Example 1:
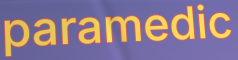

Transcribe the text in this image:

paramedic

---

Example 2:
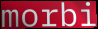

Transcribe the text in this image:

morbi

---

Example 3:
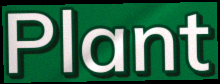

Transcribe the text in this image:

Plant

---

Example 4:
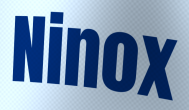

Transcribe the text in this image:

Ninox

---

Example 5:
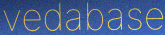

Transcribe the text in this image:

vedabase